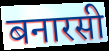
बनारसी